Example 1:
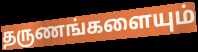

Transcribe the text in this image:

தருணங்களையும்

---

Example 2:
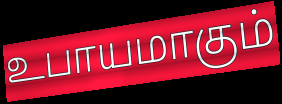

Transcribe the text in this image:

உபாயமாகும்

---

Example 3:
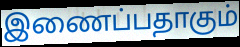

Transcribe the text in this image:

இணைப்பதாகும்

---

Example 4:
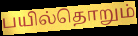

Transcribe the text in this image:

பயில்தொறும்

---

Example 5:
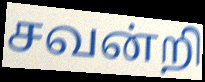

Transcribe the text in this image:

சவன்றி